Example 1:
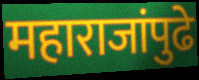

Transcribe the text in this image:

महाराजांपुढे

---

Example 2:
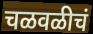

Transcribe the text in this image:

चळवळीचं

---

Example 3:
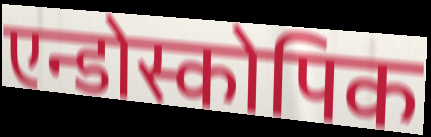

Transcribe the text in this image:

एन्डोस्कोपिक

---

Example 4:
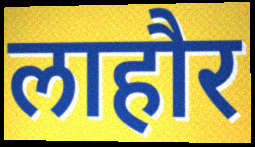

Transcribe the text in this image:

लाहौर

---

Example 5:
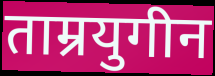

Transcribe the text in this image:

ताम्रयुगीन